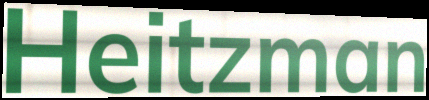
Heitzman